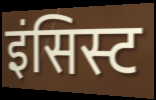
इंसिस्ट